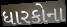
ધારકોના